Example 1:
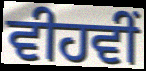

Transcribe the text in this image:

ਵੀਹਵੀਂ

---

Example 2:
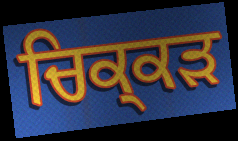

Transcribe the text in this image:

ਚਿਕ੍ਕੜ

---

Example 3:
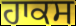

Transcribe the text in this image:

ਹਾਕਸ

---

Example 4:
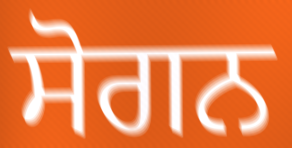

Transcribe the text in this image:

ਸੋਗਨ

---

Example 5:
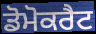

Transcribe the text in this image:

ਡੋਮੋਕਰੈਟ